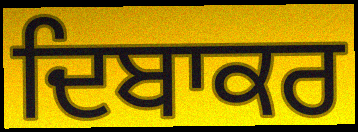
ਦਿਬਾਕਰ